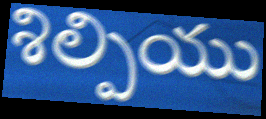
శిల్పియు